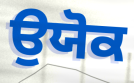
ਉਯੋਕ